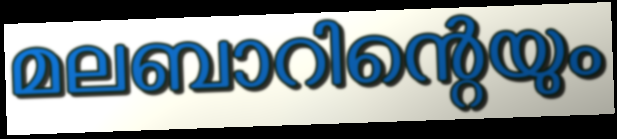
മലബാറിന്റെയും